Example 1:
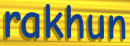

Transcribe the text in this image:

rakhun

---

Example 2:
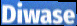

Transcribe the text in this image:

Diwase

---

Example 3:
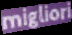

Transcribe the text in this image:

migliori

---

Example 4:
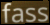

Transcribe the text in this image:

fass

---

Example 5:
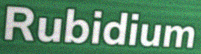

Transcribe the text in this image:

Rubidium